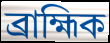
ব্ৰাহ্মিক